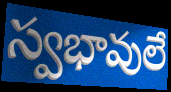
స్వభావులే